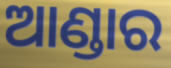
ଆଣ୍ଡାର